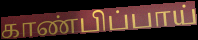
காண்பிப்பாய்